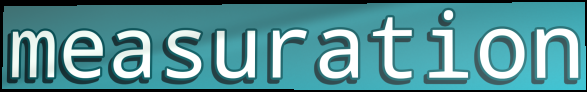
measuration